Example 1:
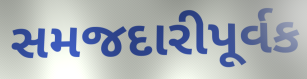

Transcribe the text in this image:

સમજદારીપૂર્વક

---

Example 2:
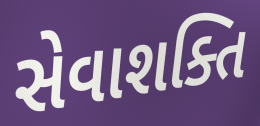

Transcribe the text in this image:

સેવાશક્તિ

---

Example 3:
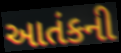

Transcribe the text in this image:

આતંકની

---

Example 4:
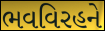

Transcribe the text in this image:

ભવવિરહને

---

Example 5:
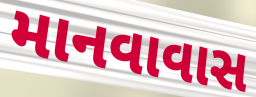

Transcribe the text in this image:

માનવાવાસ